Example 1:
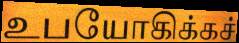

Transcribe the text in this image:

உபயோகிக்கச்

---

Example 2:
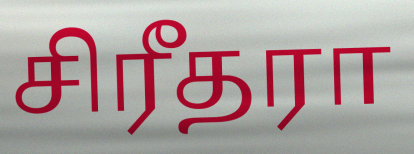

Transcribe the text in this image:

சிரீதரா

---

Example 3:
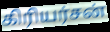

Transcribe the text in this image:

கிரியர்சன்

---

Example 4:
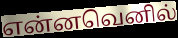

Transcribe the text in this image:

என்னவெனில்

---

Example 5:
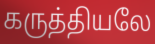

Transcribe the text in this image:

கருத்தியலே